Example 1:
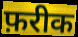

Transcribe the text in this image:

फ़रीक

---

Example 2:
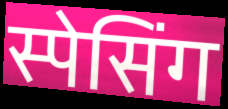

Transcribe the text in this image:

स्पेसिंग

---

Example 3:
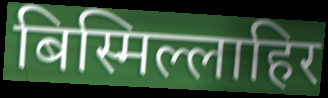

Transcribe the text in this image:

बिस्मिल्लाहिर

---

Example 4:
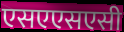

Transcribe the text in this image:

एसएएसएसी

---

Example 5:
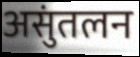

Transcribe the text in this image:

असुंतलन